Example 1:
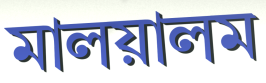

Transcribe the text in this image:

মালয়ালম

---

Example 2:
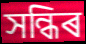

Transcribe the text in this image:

সন্ধিৰ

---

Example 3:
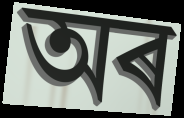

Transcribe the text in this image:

অৰ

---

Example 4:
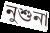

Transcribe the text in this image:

নুশুনা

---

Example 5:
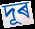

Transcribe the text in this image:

দূৰ